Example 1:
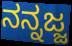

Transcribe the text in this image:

ನನ್ನಜ್ಜ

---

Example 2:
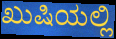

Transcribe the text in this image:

ಖುಷಿಯಲ್ಲಿ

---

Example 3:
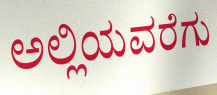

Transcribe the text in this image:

ಅಲ್ಲಿಯವರೆಗು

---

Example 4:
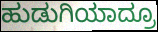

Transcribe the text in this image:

ಹುಡುಗಿಯಾದ್ರೂ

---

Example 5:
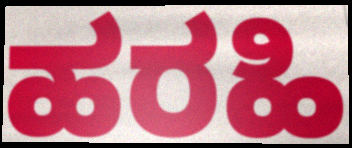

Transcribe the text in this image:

ಹರಹಿ